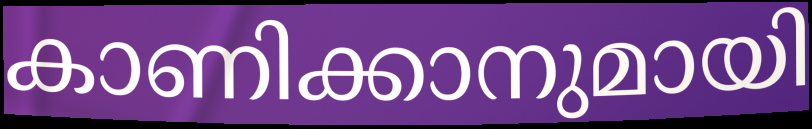
കാണിക്കാനുമായി